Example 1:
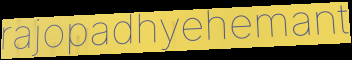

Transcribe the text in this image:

rajopadhyehemant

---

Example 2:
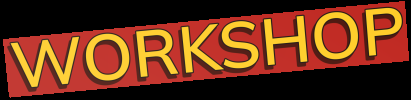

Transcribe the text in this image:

WORKSHOP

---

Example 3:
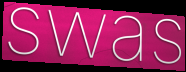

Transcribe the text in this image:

swas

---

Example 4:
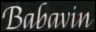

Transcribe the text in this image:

Babavin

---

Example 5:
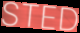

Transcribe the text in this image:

STED